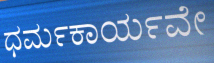
ಧರ್ಮಕಾರ್ಯವೇ